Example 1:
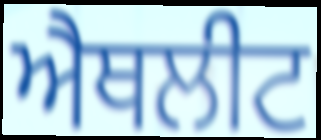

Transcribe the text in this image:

ਐਥਲੀਟ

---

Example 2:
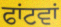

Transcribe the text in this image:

ਫਾਂਟਵਾਂ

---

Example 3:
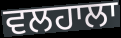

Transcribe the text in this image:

ਵਲਹਾਲਾ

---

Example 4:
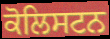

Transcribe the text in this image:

ਕੋਲਿਸਟਨ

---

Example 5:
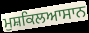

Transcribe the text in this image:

ਮੁਸ਼ਕਿਲਆਸਾਨ